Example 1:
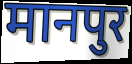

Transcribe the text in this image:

मानपुर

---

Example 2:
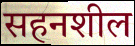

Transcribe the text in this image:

सहनशील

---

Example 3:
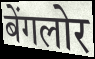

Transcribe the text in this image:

बेंगलोर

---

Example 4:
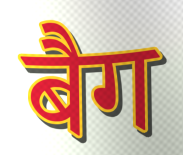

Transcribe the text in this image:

बैग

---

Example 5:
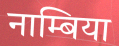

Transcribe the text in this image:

नाम्बिया